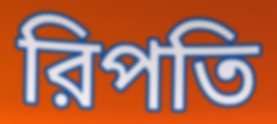
রিপতি